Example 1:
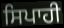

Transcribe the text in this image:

ਸਿਪਾਹੀ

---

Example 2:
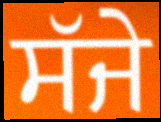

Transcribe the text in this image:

ਸੱਜੇ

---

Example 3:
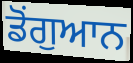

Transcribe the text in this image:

ਡੋਂਗੁਆਨ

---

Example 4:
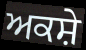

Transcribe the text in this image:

ਅਕਸ਼ੇ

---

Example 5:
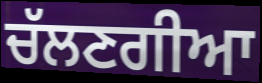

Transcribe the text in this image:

ਚੱਲਣਗੀਆ